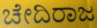
ಚೇದಿರಾಜ